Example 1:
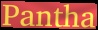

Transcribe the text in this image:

Pantha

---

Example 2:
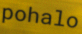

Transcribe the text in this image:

pohalo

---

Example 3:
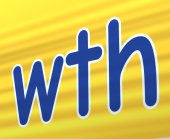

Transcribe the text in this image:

wth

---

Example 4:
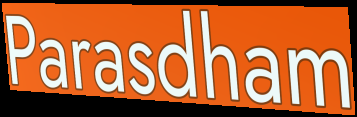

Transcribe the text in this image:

Parasdham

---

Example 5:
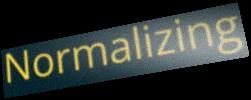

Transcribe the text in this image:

Normalizing